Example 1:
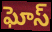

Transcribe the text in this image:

ఘోస్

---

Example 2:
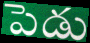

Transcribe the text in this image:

పెడు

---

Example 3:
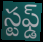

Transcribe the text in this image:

స్టఫ్డ్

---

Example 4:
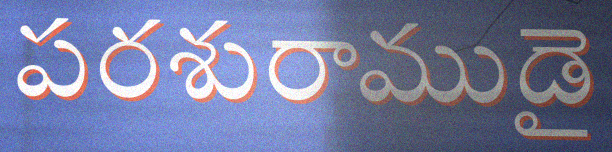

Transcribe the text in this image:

పరశురాముడై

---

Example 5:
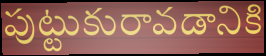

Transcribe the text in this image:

పుట్టుకురావడానికి